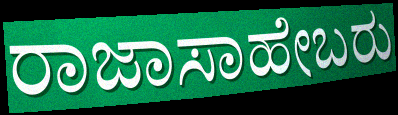
ರಾಜಾಸಾಹೇಬರು